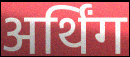
अर्थिंग